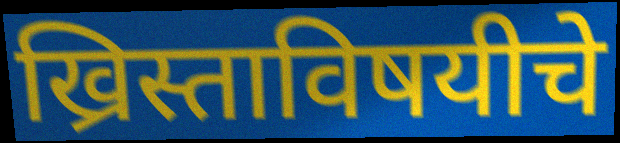
ख्रिस्ताविषयीचे